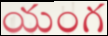
యంగ